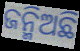
ଜନ୍ମିଅଛି